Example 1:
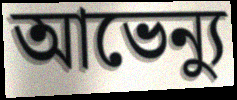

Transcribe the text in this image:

আভেন্যু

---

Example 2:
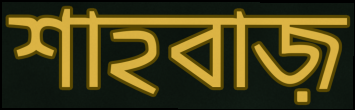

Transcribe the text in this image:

শাহবাজ়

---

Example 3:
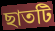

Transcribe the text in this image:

ছাতটি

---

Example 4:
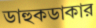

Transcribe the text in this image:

ডাহুকডাকার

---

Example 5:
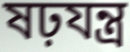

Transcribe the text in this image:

ষঢ়যন্ত্র